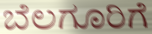
ಬೆಲಗೂರಿಗೆ